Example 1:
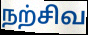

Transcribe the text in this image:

நற்சிவ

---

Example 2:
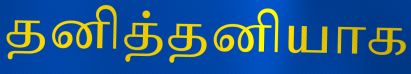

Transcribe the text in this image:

தனித்தனியாக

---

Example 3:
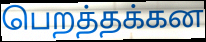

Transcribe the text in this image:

பெறத்தக்கன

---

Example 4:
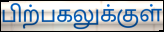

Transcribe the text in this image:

பிற்பகலுக்குள்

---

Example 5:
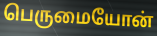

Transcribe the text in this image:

பெருமையோன்